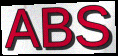
ABS